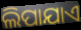
ଲିପାଯାଏ